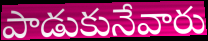
పాడుకునేవారు